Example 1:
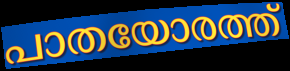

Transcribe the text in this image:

പാതയോരത്ത്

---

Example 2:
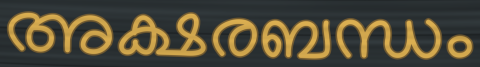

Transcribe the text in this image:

അക്ഷരബന്ധം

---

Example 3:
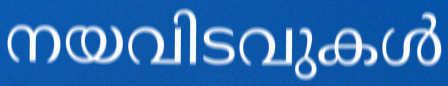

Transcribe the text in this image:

നയവിടവുകൾ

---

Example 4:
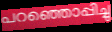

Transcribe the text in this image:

പറഞ്ഞൊപ്പിച്ചു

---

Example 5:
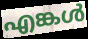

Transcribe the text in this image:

എങ്കൾ